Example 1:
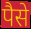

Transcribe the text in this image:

पैसे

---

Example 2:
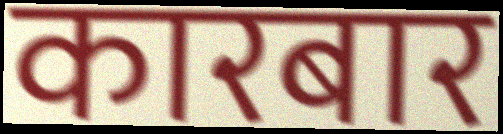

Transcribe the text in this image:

कारबार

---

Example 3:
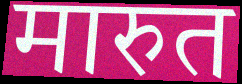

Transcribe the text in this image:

मारुत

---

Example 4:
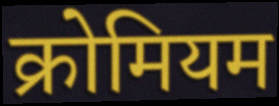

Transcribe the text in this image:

क्रोमियम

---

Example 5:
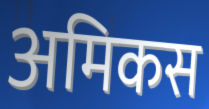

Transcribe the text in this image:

अमिकस